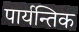
पार्यन्तिक